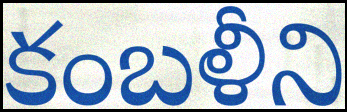
కంబళీని